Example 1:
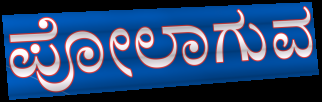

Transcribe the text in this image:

ಪೋಲಾಗುವ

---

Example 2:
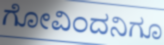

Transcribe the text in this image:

ಗೋವಿಂದನಿಗೂ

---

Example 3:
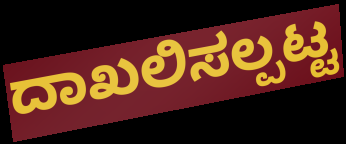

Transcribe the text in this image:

ದಾಖಲಿಸಲ್ಪಟ್ಟ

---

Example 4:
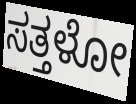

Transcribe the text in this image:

ಸತ್ತಳೋ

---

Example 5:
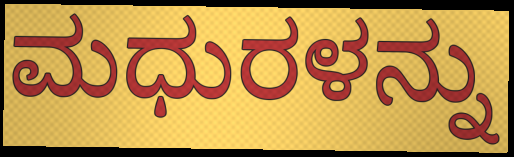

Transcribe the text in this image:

ಮಧುರಳನ್ನು